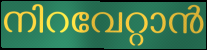
നിറവേറ്റാൻ